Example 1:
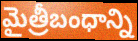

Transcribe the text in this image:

మైత్రీబంధాన్ని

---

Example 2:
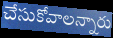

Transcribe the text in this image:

చేసుకోవాలన్నారు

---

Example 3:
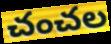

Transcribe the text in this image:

చంచల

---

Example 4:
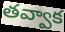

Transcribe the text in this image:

తవ్వాక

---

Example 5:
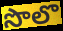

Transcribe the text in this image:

సొలొ